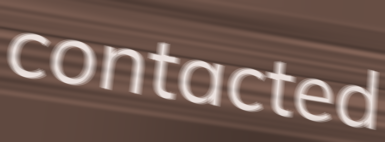
contacted